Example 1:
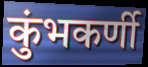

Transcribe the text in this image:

कुंभकर्णी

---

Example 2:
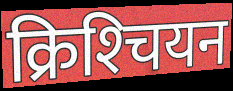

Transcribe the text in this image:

क्रिश्‍चियन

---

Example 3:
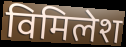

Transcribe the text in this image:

विमिलेश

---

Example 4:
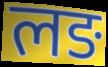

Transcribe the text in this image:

लङ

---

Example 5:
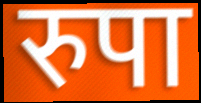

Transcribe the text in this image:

रुपा